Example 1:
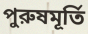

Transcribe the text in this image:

পুরুষমূর্তি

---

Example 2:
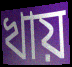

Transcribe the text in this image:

খায়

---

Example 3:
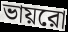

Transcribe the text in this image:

ভায়রো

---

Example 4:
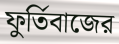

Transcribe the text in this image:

ফুর্তিবাজের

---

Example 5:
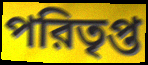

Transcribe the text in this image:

পরিতৃপ্ত